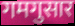
गमगुसार